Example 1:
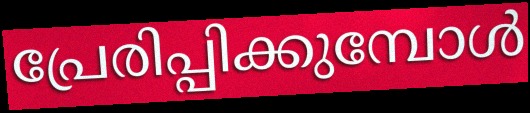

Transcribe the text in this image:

പ്രേരിപ്പിക്കുമ്പോൾ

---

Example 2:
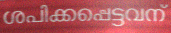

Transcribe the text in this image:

ശപിക്കപ്പെട്ടവന്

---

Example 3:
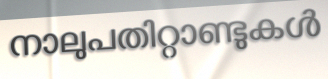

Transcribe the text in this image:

നാലുപതിറ്റാണ്ടുകൾ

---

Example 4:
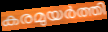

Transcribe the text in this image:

കരമുയർത്തി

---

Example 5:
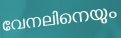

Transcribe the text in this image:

വേനലിനെയും